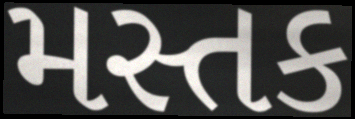
મસ્તક